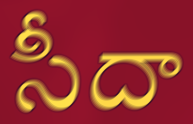
సీదా